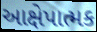
આક્ષેપાત્મક